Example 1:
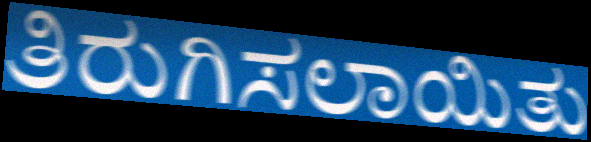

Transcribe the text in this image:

ತಿರುಗಿಸಲಾಯಿತು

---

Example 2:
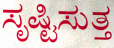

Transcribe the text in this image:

ಸೃಷ್ಟಿಸುತ್ತ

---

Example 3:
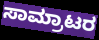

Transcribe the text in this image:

ಸಾಮ್ರಾಟರ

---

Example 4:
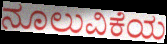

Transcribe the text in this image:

ನೂಲುವಿಕೆಯ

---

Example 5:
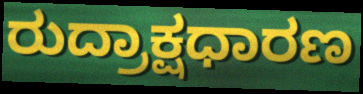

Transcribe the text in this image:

ರುದ್ರಾಕ್ಷಧಾರಣ